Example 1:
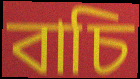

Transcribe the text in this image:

বাচি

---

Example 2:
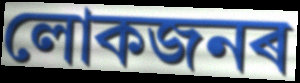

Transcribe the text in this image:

লোকজনৰ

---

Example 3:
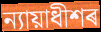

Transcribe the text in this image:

ন্যায়াধীশৰ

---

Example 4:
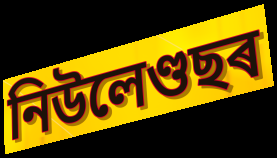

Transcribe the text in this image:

নিউলেণ্ডছৰ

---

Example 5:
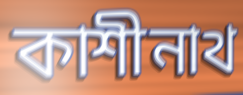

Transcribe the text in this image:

কাশীনাথ